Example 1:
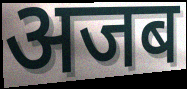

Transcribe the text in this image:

अजब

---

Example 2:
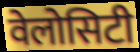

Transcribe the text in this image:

वेलोसिटी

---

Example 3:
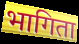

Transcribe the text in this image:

भागिता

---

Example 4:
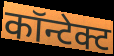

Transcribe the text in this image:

कॉन्टेक्ट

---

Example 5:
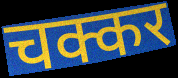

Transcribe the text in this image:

चक्कर